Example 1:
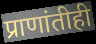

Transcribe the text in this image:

प्राणांतीही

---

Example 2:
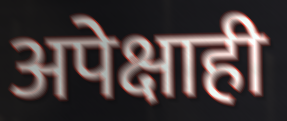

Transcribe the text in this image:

अपेक्षाही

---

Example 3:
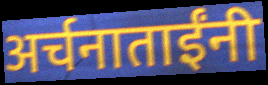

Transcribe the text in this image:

अर्चनाताईंनी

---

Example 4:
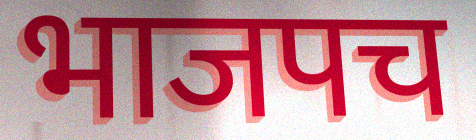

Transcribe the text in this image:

भाजपच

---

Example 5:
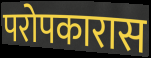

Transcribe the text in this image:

परोपकारास